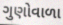
ગુણોવાળા